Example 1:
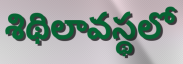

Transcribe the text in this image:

శిథిలావస్థలో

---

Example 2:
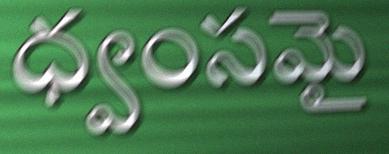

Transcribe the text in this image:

ధ్వంసమై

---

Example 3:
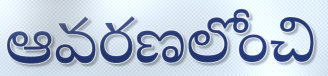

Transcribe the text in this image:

ఆవరణలోంచి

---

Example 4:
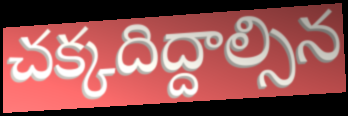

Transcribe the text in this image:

చక్కదిద్దాల్సిన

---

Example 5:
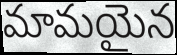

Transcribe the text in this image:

మామయైన